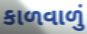
કાળવાળું